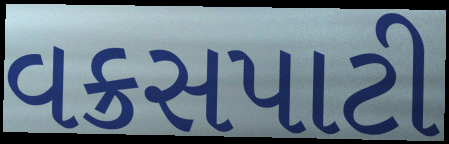
વક્રસપાટી